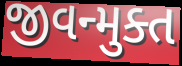
જીવન્મુક્ત